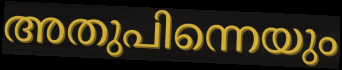
അതുപിന്നെയും